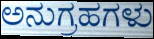
ಅನುಗ್ರಹಗಳು